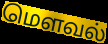
மௌவல்